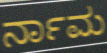
ರ್ನಾಮ